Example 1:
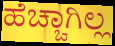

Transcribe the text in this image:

ಹೆಚ್ಚಾಗಿಲ್ಲ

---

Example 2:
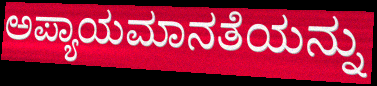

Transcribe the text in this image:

ಅಪ್ಯಾಯಮಾನತೆಯನ್ನು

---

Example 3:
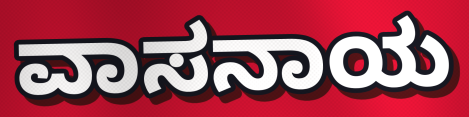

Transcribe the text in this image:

ವಾಸನಾಯ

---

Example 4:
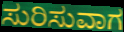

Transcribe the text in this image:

ಸುರಿಸುವಾಗ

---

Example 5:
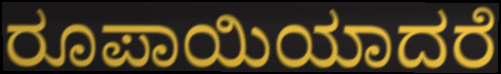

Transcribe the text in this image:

ರೂಪಾಯಿಯಾದರೆ